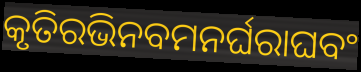
କୃତିରଭିନବମନର୍ଘରାଘବଂ